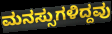
ಮನಸ್ಸುಗಳಿದ್ದವು